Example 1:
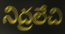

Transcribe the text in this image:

నిద్రలేచి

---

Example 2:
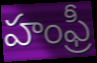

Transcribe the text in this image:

హంఫ్రీ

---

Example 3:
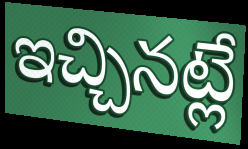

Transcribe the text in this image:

ఇచ్చినట్లే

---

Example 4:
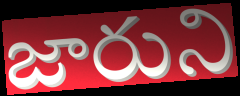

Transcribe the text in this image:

జారుని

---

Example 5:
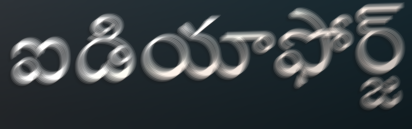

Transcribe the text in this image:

ఐడియాఫోర్జ్